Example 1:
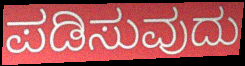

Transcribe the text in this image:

ಪಡಿಸುವುದು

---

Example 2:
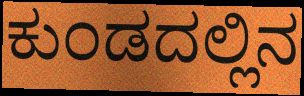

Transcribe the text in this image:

ಕುಂಡದಲ್ಲಿನ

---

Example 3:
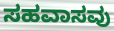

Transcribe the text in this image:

ಸಹವಾಸವು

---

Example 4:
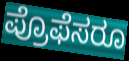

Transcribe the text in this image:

ಪ್ರೊಫೆಸರೂ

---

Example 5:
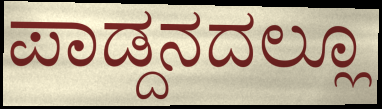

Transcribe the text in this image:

ಪಾಡ್ದನದಲ್ಲೂ